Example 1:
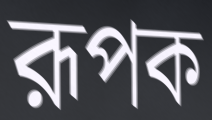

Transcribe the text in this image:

রূপক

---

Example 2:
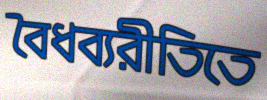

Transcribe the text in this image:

বৈধব্যরীতিতে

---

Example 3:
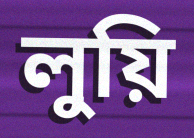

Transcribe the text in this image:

লুয়ি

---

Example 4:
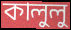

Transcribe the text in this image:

কালুলু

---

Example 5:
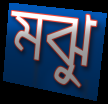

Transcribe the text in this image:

মঝু